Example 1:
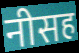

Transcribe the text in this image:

नीसह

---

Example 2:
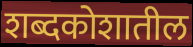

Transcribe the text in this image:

शब्दकोशातील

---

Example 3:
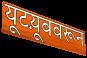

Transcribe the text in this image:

यूटय़ूबवरून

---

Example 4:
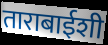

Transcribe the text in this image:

ताराबाईशी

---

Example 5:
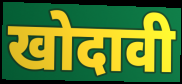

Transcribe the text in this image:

खोदावी